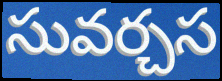
సువర్చస